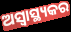
ଅସ୍ୱାସ୍ଥ୍ୟକର